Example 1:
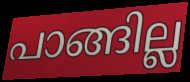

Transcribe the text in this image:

പാങ്ങില്ല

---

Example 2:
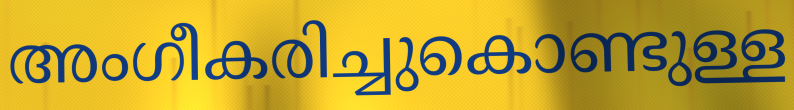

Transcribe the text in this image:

അംഗീകരിച്ചുകൊണ്ടുള്ള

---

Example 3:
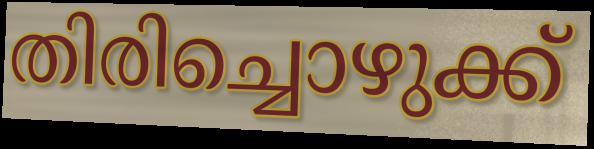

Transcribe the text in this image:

തിരിച്ചൊഴുക്ക്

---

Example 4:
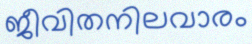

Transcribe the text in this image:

ജീവിതനിലവാരം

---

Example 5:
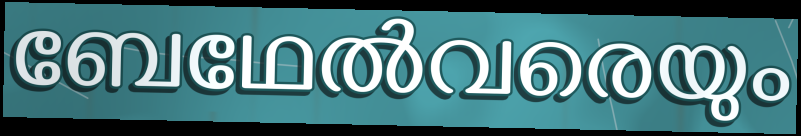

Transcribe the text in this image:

ബേഥേൽവരെയും